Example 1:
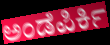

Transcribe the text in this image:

ಅಂಡೆಪಿರ್ಕಿ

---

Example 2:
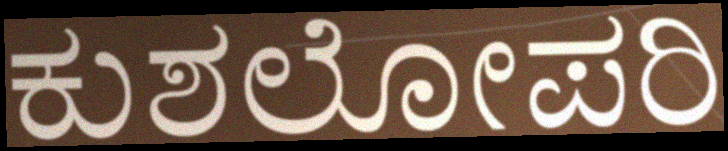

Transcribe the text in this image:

ಕುಶಲೋಪರಿ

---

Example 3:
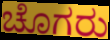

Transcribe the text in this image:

ಚೊಗರು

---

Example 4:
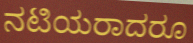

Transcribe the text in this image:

ನಟಿಯರಾದರೂ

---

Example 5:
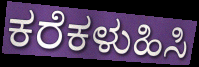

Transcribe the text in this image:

ಕರೆಕಳುಹಿಸಿ